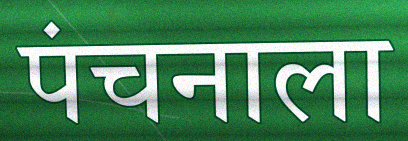
पंचनाला